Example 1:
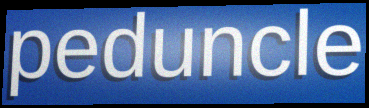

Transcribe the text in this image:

peduncle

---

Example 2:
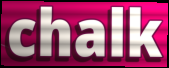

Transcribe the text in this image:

chalk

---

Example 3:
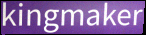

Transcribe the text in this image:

kingmaker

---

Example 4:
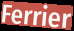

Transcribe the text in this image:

Ferrier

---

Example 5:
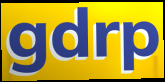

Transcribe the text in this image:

gdrp